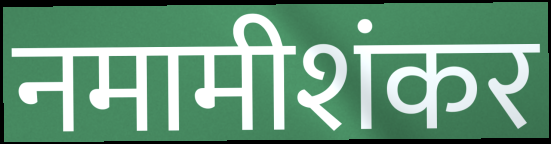
नमामीशंकर